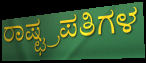
ರಾಷ್ಟ್ರಪತಿಗಳ